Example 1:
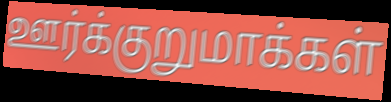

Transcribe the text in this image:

ஊர்க்குறுமாக்கள்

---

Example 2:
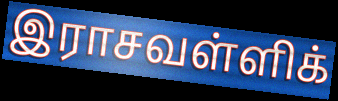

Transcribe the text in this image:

இராசவள்ளிக்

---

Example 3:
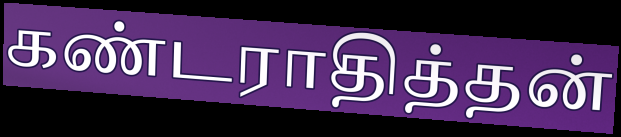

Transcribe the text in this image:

கண்டராதித்தன்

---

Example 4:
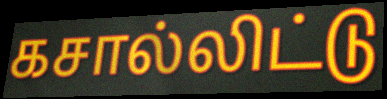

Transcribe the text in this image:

கசால்லிட்டு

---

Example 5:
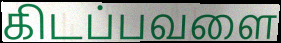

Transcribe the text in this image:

கிடப்பவளை